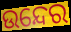
ଉନ୍ଦେର